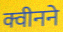
क्वीनने